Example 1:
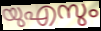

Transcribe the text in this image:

യുഎസും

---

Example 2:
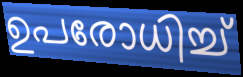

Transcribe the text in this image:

ഉപരോധിച്ച്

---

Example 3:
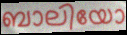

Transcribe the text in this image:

ബാലിയോ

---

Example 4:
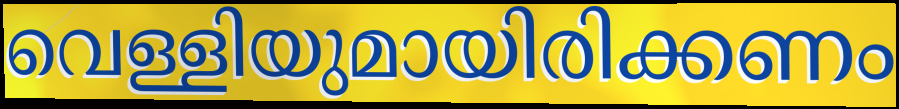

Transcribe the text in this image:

വെള്ളിയുമായിരിക്കണം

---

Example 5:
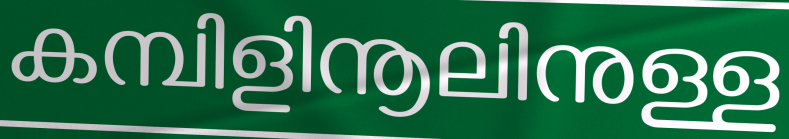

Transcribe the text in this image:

കമ്പിളിനൂലിനുള്ള